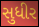
સુધીર